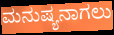
ಮನುಷ್ಯನಾಗಲು